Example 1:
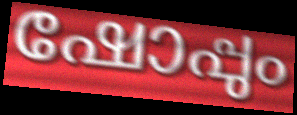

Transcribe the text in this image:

ഷോപ്പും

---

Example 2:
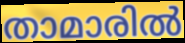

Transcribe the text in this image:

താമാരിൽ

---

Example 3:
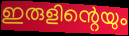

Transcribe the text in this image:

ഇരുളിന്റെയും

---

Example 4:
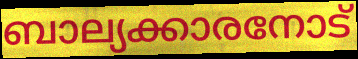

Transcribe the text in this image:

ബാല്യക്കാരനോട്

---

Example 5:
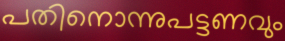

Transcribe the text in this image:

പതിനൊന്നുപട്ടണവും